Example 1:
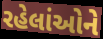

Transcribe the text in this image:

રહેલાંઓને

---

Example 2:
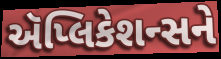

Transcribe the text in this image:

ઍપ્લિકેશન્સને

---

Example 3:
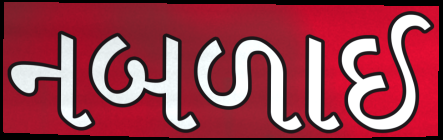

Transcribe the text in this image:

નબળાઈ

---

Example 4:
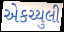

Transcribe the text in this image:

એકચ્યુલી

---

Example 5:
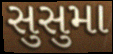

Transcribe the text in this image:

સુસુમા